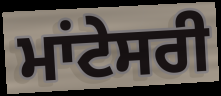
ਮਾਂਟੇਸਰੀ